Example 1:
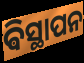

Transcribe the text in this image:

ଵିସ୍ଥାପନ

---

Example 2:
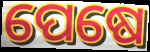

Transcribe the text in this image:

ପେଷେ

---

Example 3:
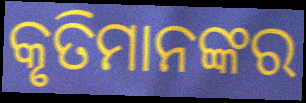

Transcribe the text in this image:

କୃତିମାନଙ୍କର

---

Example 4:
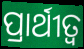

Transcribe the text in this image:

ପ୍ରାର୍ଥୀତ୍ଵ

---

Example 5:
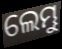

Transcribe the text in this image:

ଲେମ୍ଭୁ